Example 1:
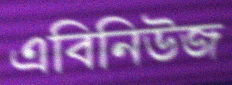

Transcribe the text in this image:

এবিনিউজ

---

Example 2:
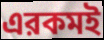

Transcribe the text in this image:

এরকমই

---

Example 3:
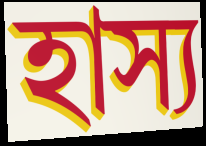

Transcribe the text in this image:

হাস্য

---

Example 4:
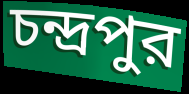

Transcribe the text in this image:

চন্দ্রপুর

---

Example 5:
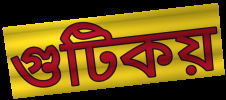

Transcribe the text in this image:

গুটিকয়